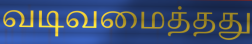
வடிவமைத்தது